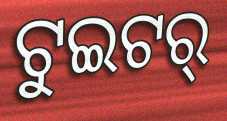
ଟୁଇଟର୍